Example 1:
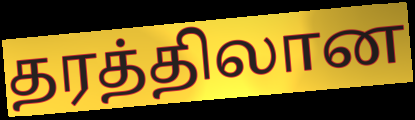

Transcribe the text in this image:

தரத்திலான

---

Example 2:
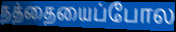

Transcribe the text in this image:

நத்தையைப்போல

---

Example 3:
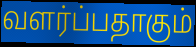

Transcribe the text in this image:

வளர்ப்பதாகும்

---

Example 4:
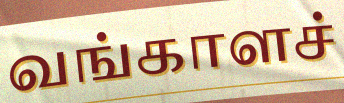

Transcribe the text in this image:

வங்காளச்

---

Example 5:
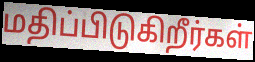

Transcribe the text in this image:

மதிப்பிடுகிறீர்கள்